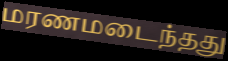
மரணமடைந்தது